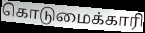
கொடுமைக்காரி